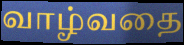
வாழ்வதை